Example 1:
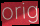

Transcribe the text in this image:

orig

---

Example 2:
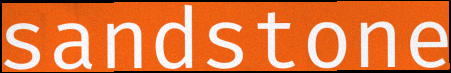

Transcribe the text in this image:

sandstone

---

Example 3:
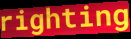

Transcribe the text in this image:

righting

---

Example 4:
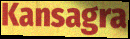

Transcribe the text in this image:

Kansagra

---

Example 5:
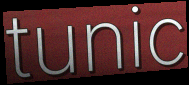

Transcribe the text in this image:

tunic